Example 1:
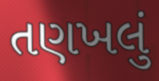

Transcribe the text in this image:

તણખલું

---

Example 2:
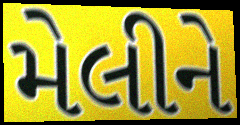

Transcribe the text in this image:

મેલીને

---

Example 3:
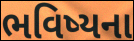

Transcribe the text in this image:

ભવિષ્યના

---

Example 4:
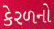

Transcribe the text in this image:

કેરળનો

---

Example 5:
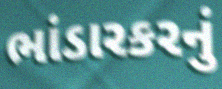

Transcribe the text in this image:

ભાંડારકરનું